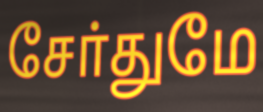
சேர்துமே